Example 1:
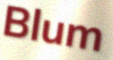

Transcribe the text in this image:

Blum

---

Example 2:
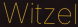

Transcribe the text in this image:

Witzel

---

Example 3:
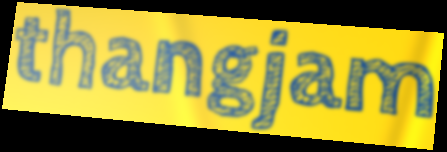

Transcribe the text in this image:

thangjam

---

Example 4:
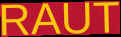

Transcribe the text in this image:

RAUT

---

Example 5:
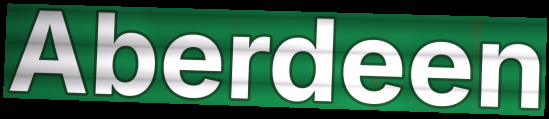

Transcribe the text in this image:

Aberdeen